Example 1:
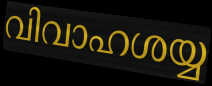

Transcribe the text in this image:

വിവാഹശയ്യ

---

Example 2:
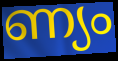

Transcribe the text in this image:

ണ്യം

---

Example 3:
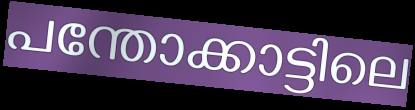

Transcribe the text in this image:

പന്തോക്കാട്ടിലെ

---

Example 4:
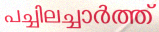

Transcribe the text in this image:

പച്ചിലച്ചാർത്ത്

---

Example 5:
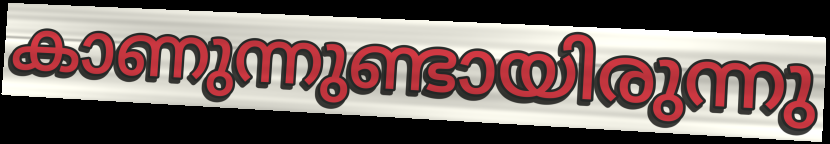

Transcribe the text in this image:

കാണുന്നുണ്ടായിരുന്നു